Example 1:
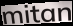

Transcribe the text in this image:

mitan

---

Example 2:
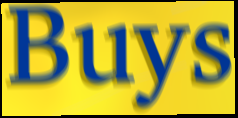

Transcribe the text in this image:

Buys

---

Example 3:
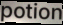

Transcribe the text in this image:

potion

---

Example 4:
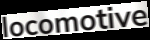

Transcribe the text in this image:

locomotive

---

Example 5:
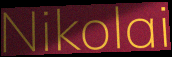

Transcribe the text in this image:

Nikolai